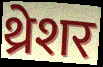
थ्रेशर